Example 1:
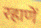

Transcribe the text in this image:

रहाणें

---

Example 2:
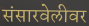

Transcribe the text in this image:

संसारवेलीवर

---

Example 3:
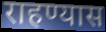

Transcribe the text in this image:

राहण्यास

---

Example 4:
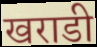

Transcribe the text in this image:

खराडी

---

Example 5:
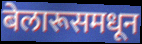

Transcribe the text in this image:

बेलारूसमधून